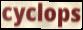
cyclops